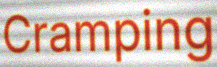
Cramping